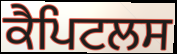
ਕੈਪਿਟਲਸ